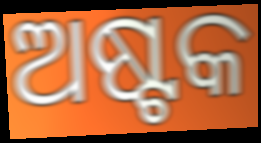
ଅଷ୍ଟକ